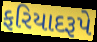
ફરિયાદરૂપે